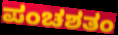
ಪಂಚಶತಂ